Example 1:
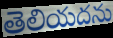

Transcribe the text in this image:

తెలియదను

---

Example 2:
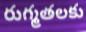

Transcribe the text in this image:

రుగ్మతలకు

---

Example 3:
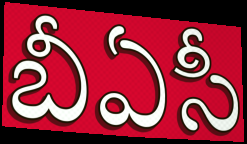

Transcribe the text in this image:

బీఏసీ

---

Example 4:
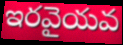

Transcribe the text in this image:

ఇరవైయవ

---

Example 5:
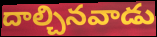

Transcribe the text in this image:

దాల్చినవాడు